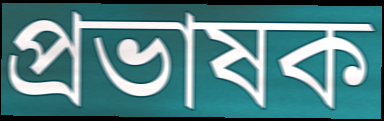
প্রভাষক